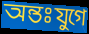
অন্তঃযুগে